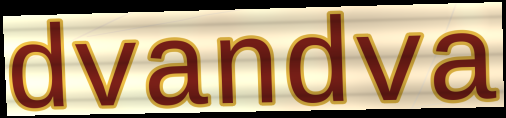
dvandva